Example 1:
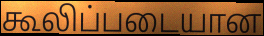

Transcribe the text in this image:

கூலிப்படையான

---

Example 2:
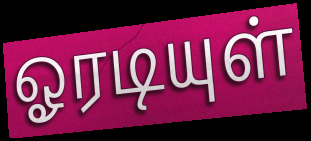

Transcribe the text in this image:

ஓரடியுள்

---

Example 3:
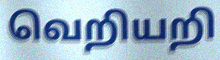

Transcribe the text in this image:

வெறியறி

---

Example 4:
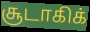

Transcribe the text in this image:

சூடாகிக்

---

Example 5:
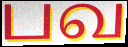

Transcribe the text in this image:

பவ